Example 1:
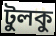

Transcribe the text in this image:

টুলকু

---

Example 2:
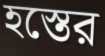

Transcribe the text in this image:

হস্তের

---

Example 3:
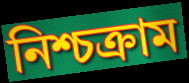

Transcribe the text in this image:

নিশ্চক্রাম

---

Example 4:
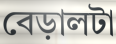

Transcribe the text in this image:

বেড়ালটা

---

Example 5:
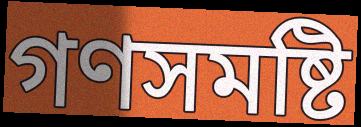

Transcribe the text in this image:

গণসমষ্টি